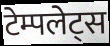
टेम्पलेट्स